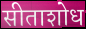
सीताशोध